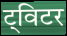
ट्‌विटर